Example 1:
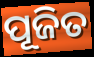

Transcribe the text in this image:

ପୂଜିତ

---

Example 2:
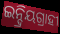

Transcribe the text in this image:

ଇନ୍ଦ୍ରିୟଗ୍ରାହୀ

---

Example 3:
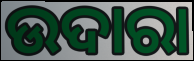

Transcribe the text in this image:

ଉଦାରା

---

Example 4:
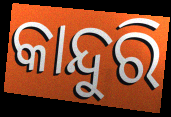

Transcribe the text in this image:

କାନ୍ଦୁରି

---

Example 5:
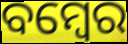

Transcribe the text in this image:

ବମ୍ୱେର